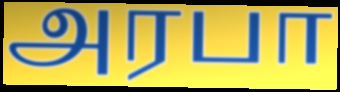
அரபா